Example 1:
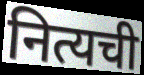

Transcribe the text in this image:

नित्यची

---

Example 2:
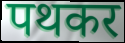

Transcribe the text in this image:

पथकर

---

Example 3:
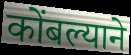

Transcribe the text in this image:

कोंबल्याने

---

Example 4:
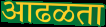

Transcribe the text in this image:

आढळता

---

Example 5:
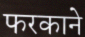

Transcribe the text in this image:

फरकाने